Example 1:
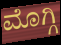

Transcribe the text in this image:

ಮೊಗ್ಗಿ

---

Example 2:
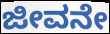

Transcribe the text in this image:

ಜೀವನೇ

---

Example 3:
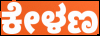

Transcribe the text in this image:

ಕೇಳಣ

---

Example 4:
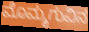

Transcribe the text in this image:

ಮೊಮ್ಮಗುವಿನ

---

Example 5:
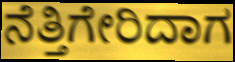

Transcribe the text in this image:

ನೆತ್ತಿಗೇರಿದಾಗ